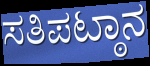
ಸತಿಪಟ್ಠಾನ